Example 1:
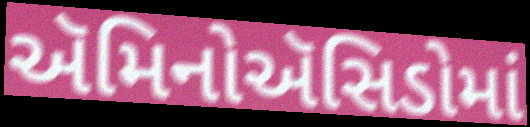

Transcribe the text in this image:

ઍમિનોઍસિડોમાં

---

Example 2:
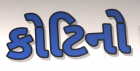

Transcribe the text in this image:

કોટિનો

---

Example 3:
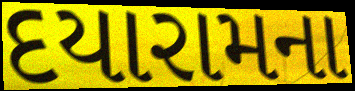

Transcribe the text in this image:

દયારામના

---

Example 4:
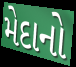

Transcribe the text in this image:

મેદાનો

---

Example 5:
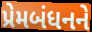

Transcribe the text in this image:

પ્રેમબંધનને